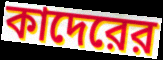
কাদেরের